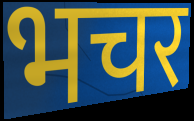
भचर